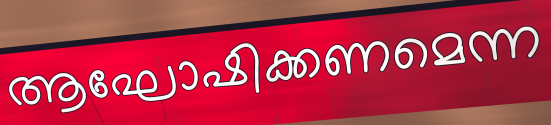
ആഘോഷിക്കണമെന്ന